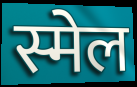
स्‍मेल